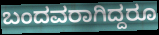
ಬಂದವರಾಗಿದ್ದರೂ